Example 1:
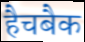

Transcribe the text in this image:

हैचबैक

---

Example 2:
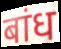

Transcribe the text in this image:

बांध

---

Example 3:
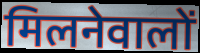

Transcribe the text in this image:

मिलनेवालों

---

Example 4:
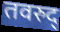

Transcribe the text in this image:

तवरुद्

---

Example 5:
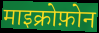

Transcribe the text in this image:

माइक्रोफ़ोन